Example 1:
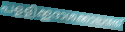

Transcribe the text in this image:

പളളിക്കൂദാശക്കാലത്ത്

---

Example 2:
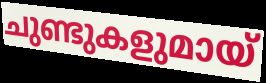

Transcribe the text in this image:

ചുണ്ടുകളുമായ്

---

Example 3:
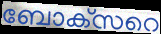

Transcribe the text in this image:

ബോക്‌സറെ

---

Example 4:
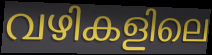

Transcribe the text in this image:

വഴികളിലെ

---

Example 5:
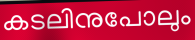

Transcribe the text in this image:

കടലിനുപോലും